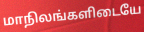
மாநிலங்களிடையே